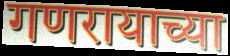
गणरायाच्या